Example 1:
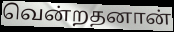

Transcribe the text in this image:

வென்றதனான்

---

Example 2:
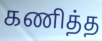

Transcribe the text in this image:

கணித்த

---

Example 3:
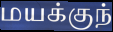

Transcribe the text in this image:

மயக்குந்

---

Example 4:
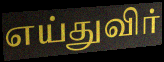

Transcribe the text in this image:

எய்துவிர்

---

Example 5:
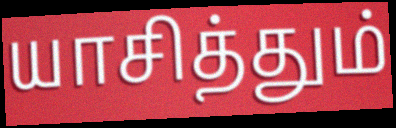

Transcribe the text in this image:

யாசித்தும்